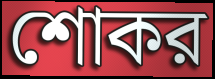
শোকর